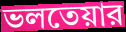
ভলতেয়ার